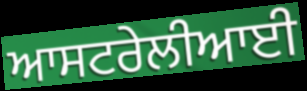
ਆਸਟਰੇਲੀਆਈ